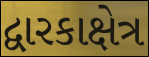
દ્વારકાક્ષેત્ર